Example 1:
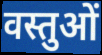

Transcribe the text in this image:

वस्तुओं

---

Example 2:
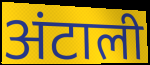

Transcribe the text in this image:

अंटाली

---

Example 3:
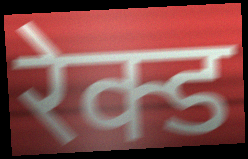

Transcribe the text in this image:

रेक्ड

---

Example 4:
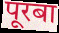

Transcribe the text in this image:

पूरबा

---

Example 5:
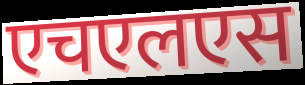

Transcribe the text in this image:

एचएलएस